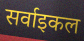
सर्वाइकल